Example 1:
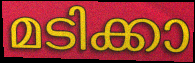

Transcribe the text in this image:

മടിക്കാ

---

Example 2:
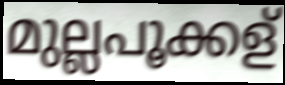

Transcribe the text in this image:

മുല്ലപൂക്കള്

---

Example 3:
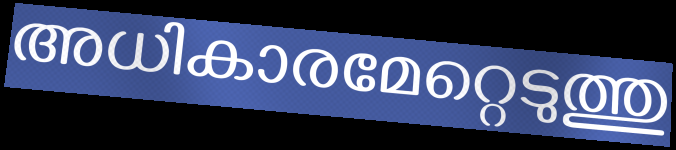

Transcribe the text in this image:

അധികാരമേറ്റെടുത്തു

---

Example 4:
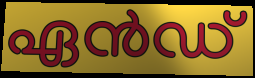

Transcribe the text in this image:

ഏൻഡ്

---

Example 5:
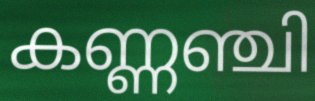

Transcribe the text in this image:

കണ്ണഞ്ചി